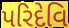
પરિદેવિ